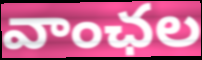
వాంఛల